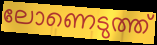
ലോണെടുത്ത്